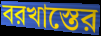
বরখাস্তের